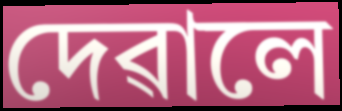
দেৱালে